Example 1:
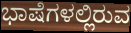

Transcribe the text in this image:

ಭಾಷೆಗಳಲ್ಲಿರುವ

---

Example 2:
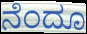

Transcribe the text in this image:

ನೆಂದೂ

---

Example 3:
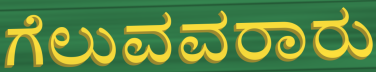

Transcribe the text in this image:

ಗೆಲುವವರಾರು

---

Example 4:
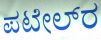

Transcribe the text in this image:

ಪಟೇಲ್‌ರ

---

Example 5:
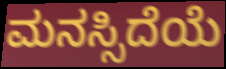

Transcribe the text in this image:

ಮನಸ್ಸಿದೆಯೆ